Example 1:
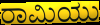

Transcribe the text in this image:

ರಾಮಿಯು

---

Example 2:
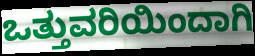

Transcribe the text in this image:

ಒತ್ತುವರಿಯಿಂದಾಗಿ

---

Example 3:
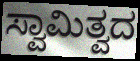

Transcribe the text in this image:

ಸ್ವಾಮಿತ್ವದ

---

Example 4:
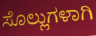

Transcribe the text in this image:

ಸೊಲ್ಲುಗಳಾಗಿ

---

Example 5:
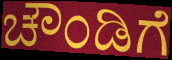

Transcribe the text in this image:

ಚೌಂಡಿಗೆ